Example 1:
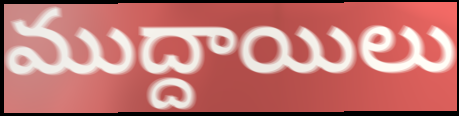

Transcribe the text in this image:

ముద్దాయిలు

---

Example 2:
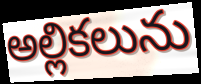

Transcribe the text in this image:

అల్లికలును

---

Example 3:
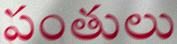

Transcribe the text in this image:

పంతులు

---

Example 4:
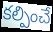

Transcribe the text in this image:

కల్పించే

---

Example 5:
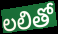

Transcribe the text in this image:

లలితో